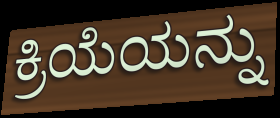
ಕ್ರಿಯೆಯನ್ನು